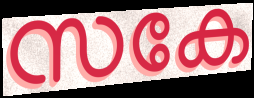
സകേ